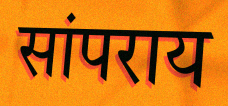
सांपराय